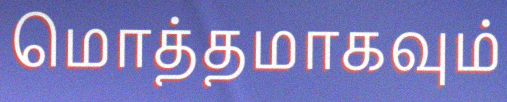
மொத்தமாகவும்